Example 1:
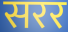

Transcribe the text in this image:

सरर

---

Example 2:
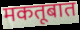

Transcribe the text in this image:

मकतूबात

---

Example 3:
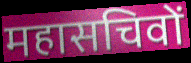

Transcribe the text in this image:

महासचिवों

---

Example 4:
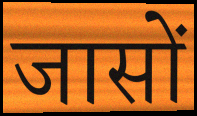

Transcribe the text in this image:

जासों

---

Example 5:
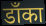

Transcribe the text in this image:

डाँका